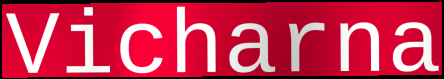
Vicharna